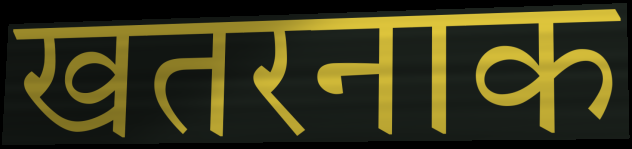
खतरनाक